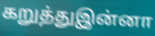
கறுத்துஇன்னா